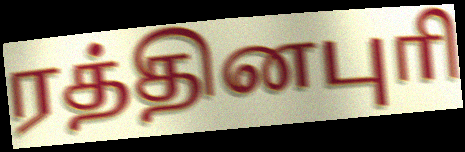
ரத்தினபுரி